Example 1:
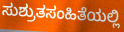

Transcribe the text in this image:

ಸುಶ್ರುತಸಂಹಿತೆಯಲ್ಲಿ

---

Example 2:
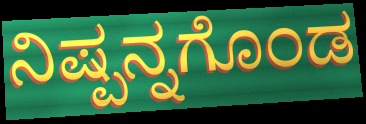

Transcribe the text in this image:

ನಿಷ್ಪನ್ನಗೊಂಡ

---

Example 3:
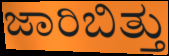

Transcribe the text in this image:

ಜಾರಿಬಿತ್ತು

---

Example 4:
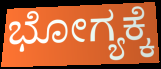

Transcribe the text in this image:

ಭೋಗ್ಯಕ್ಕೆ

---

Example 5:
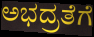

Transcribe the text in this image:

ಅಭದ್ರತೆಗೆ